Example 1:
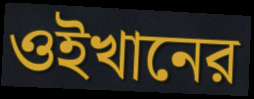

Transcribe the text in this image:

ওইখানের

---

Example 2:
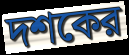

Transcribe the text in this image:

দশকের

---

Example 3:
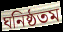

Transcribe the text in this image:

ঘনিষ্ঠতম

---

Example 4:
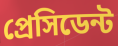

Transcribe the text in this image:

প্রেসিডেন্ট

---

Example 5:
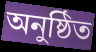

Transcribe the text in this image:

অনুষ্ঠিত